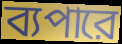
ব্যপারে